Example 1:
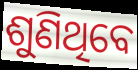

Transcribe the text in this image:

ଶୁଣିଥିବେ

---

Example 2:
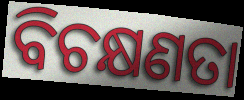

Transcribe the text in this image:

ବିଚକ୍ଷଣତା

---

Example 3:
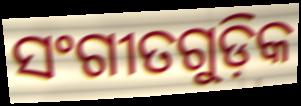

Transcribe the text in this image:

ସଂଗୀତଗୁଡ଼ିକ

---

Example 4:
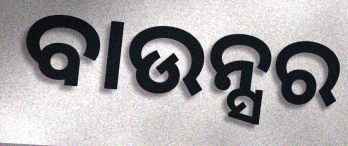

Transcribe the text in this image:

ବାଉନ୍ସର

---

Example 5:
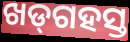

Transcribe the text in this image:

ଖଡ୍‌ଗହସ୍ତ